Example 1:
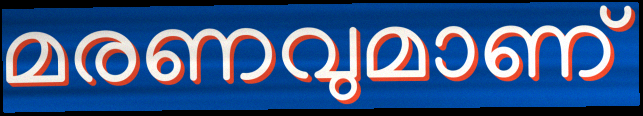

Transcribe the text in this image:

മരണവുമാണ്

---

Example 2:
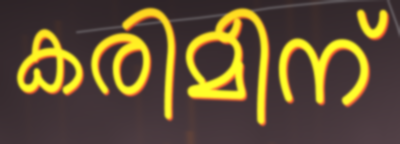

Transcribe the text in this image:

കരിമീന്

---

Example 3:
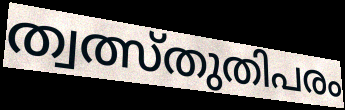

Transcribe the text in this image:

ത്വത്സ്തുതിപരം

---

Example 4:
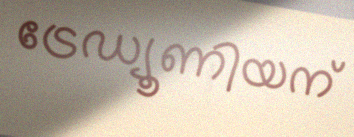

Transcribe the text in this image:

ട്രേഡ്യൂണിയന്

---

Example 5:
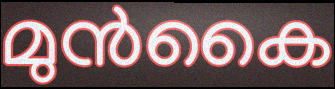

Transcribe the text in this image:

മുൻകൈ